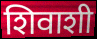
शिवाशी